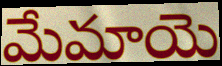
మేమాయె